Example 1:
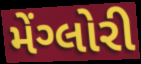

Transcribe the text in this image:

મેંગ્લોરી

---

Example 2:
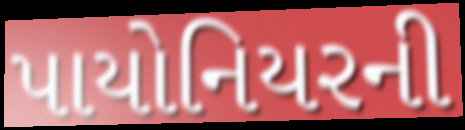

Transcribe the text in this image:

પાયોનિયરની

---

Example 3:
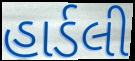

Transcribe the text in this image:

હાર્ડલી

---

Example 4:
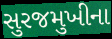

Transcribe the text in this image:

સુરજમુખીના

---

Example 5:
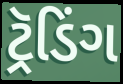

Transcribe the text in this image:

ટ્રૅડિંગ